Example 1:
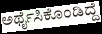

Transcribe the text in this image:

ಅರ್ಥೈಸಿಕೊಂಡಿದ್ದೆ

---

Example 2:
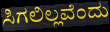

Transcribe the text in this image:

ಸಿಗಲಿಲ್ಲವೆಂದು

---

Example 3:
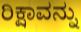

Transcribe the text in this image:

ರಿಕ್ಷಾವನ್ನು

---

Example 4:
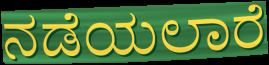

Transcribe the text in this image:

ನಡೆಯಲಾರೆ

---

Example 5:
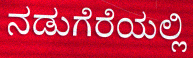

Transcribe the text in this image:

ನಡುಗೆರೆಯಲ್ಲಿ